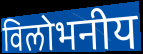
विलोभनीय